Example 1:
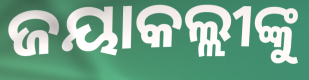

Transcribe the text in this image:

ଜୟାକଲ୍ଲୀଙ୍କୁ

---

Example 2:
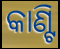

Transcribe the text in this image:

କାଣ୍ଟି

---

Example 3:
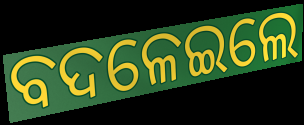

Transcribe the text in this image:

ବଦଳେଇଲେ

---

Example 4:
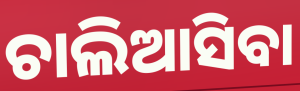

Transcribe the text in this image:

ଚାଲିଆସିବା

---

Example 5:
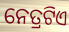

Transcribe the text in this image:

ନେତ୍ରଟିଏ